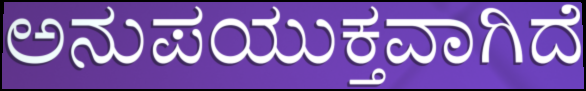
ಅನುಪಯುಕ್ತವಾಗಿದೆ